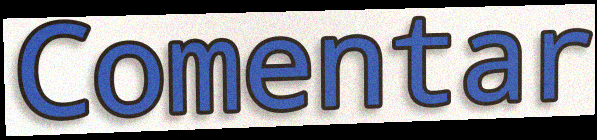
Comentar